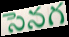
సెనగ